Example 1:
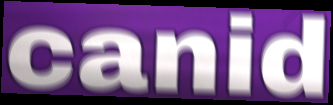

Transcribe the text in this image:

canid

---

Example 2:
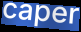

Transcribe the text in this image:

caper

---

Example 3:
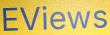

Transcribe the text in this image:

EViews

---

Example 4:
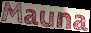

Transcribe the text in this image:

Mauna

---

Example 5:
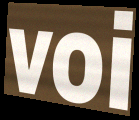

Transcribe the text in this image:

voi